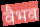
वैभव